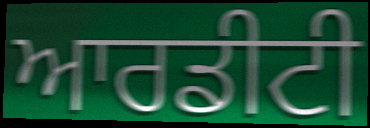
ਆਰਡੀਟੀ